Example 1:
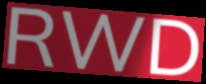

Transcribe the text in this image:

RWD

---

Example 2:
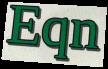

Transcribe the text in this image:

Eqn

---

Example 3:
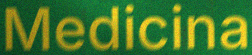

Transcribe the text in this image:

Medicina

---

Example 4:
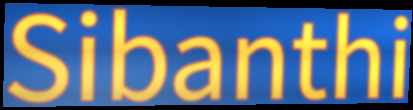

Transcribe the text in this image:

Sibanthi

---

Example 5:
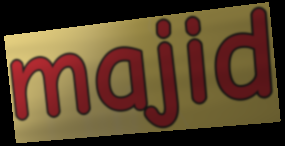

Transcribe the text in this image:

majid